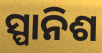
ସ୍ପାନିଶ